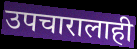
उपचारालाही